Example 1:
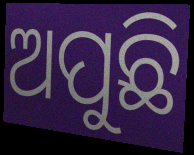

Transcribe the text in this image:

ଅପୁଛି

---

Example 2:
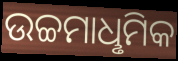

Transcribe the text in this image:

ଉଚ୍ଚମାଧୢମିକ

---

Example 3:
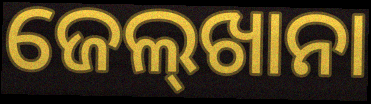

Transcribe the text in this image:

ଜେଲ୍‌ଖାନା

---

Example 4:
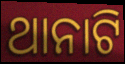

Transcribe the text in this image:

ଥାନାଟି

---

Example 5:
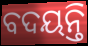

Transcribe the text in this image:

ବଦୟନ୍ତି